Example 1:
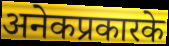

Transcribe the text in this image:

अनेकप्रकारके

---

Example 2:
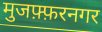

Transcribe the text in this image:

मुजफ़्फ़रनगर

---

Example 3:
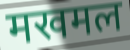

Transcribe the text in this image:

मखमल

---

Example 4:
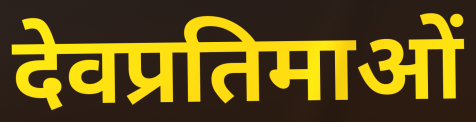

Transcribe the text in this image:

देवप्रतिमाओं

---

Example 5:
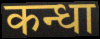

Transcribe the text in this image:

कन्धा